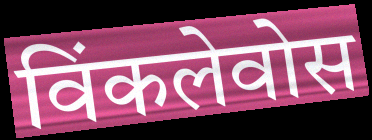
विंकलेवोस